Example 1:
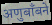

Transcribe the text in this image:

अणुबाँबने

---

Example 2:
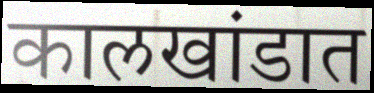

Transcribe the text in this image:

कालखांडात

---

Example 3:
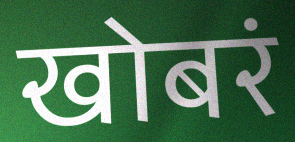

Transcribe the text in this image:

खोबरं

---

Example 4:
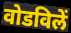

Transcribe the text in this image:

वोडविलें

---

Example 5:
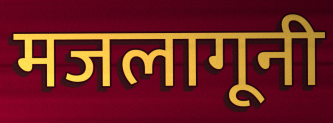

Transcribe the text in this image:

मजलागूनी